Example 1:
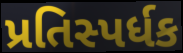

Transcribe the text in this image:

પ્રતિસ્પર્ધક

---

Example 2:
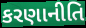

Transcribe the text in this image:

કરણાનીતિ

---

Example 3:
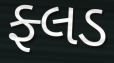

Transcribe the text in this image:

ફ્લડ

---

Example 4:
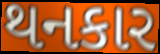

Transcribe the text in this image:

થનકાર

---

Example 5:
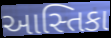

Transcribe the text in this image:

આસ્તિકા